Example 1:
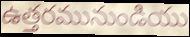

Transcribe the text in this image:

ఉత్తరమునుండియు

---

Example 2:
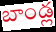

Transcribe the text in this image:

బాండ్ల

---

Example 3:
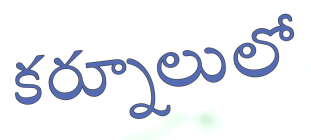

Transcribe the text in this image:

కర్నూలులో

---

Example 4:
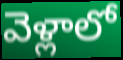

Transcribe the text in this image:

వెళ్లాలో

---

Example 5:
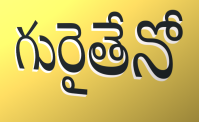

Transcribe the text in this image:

గురైతేనో